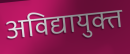
अविद्यायुक्त